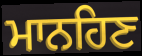
ਮਾਨਹਿਣ